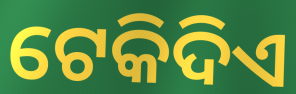
ଟେକିଦିଏ